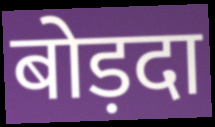
बोड़दा